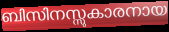
ബിസിനസ്സുകാരനായ